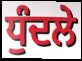
ਧੁੰਦਲੇ